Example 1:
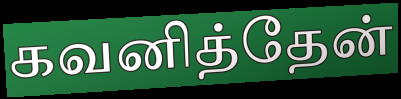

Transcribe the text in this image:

கவனித்தேன்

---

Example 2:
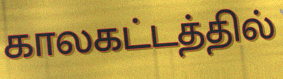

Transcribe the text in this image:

காலகட்டத்தில்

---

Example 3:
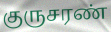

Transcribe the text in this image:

குருசரண்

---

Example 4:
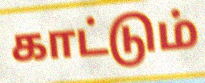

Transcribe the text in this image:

காட்டும்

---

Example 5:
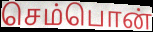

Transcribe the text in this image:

செம்பொன்